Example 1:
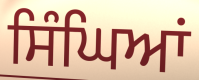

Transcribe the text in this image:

ਸਿੰਘਿਆਂ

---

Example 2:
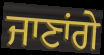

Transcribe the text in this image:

ਜਾਣਾਂਗੇ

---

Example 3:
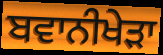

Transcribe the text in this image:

ਬਵਾਨੀਖੇੜਾ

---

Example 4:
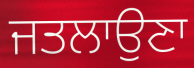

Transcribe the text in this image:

ਜਤਲਾਉਣਾ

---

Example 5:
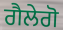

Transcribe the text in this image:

ਗੈਲੇਗੋ